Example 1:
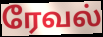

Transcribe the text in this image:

ரேவல்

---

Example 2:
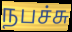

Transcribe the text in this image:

நபச்சு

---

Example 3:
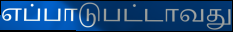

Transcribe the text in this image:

எப்பாடுபட்டாவது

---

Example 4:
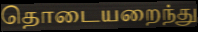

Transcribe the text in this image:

தொடையறைந்து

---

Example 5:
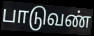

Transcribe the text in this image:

பாடுவண்